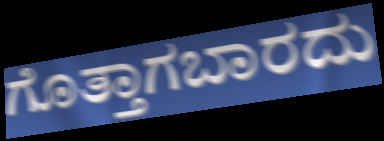
ಗೊತ್ತಾಗಬಾರದು